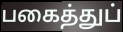
பகைத்துப்